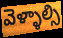
వెళ్ళాల్సి